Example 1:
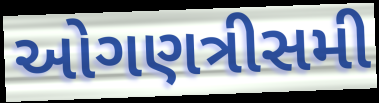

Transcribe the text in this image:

ઓગણત્રીસમી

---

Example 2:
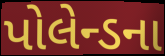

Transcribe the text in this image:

પોલેન્ડના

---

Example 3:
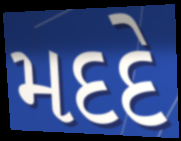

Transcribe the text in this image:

મદદે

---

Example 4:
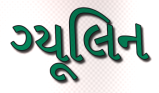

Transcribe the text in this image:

ગ્યૂલિન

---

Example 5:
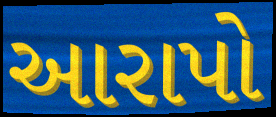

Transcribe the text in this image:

આરાપો